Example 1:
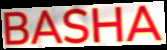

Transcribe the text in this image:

BASHA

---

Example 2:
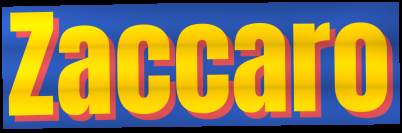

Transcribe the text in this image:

Zaccaro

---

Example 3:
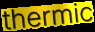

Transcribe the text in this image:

thermic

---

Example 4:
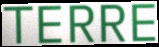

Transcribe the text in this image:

TERRE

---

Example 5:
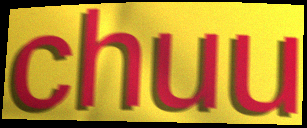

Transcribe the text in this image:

chuu